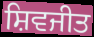
ਸ਼ਿਵਜੀਤ